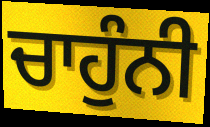
ਚਾਹੁੰਨੀ